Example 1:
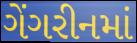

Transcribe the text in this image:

ગેંગરીનમાં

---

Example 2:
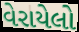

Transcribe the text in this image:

વેરાયેલો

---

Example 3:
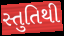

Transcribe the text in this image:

સ્તુતિથી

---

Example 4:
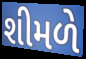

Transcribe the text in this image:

શીમળે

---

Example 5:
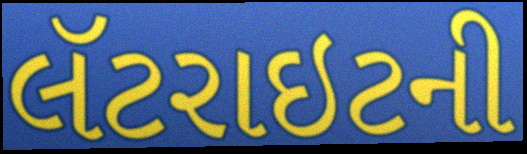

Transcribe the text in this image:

લૅટરાઇટની